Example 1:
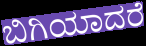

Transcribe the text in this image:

ಬಿಗಿಯಾದರೆ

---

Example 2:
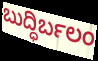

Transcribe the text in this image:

ಬುದ್ಧಿರ್ಬಲಂ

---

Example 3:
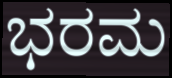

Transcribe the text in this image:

ಭರಮ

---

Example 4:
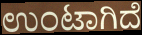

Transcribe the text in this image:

ಉಂಟಾಗಿದೆ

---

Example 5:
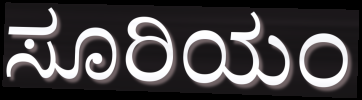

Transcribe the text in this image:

ಸೂರಿಯಂ